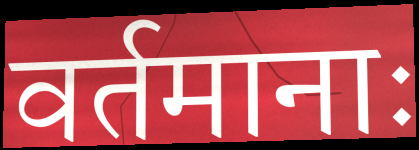
वर्तमानाः